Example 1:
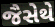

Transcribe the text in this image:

જૈસેથે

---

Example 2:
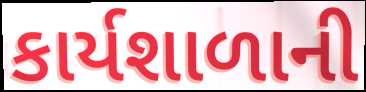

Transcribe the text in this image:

કાર્યશાળાની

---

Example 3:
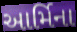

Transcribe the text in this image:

આર્મિના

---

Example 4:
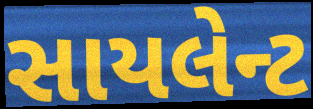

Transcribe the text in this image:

સાયલેન્ટ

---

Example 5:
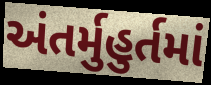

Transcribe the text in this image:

અંતર્મુહુર્તમાં